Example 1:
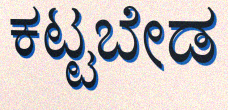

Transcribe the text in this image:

ಕಟ್ಟಬೇಡ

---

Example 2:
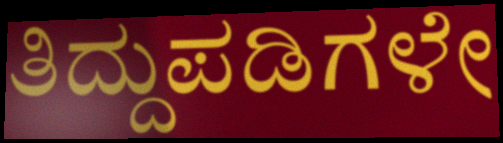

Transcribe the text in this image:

ತಿದ್ದುಪಡಿಗಳೇ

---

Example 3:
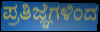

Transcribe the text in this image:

ಪ್ರತಿಜ್ಞೆಗಳಿಂದ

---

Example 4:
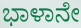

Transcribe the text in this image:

ಭಾಳಾನೇ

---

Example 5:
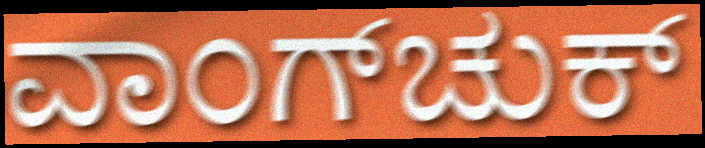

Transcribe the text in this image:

ವಾಂಗ್‌ಚುಕ್